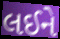
લઈને